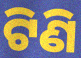
ଟିଣି